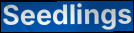
Seedlings